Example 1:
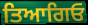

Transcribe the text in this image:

ਤਿਆਗਿਓ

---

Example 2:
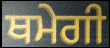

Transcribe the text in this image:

ਥਮੇਗੀ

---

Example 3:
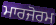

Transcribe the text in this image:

ਮਾਰਜੋਰਮ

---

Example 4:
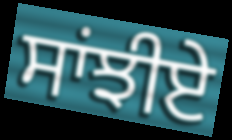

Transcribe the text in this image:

ਸਾਂਝੀਏ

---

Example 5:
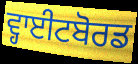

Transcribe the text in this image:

ਵ੍ਹਾਈਟਬੋਰਡ